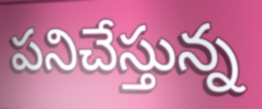
పనిచేస్తున్న